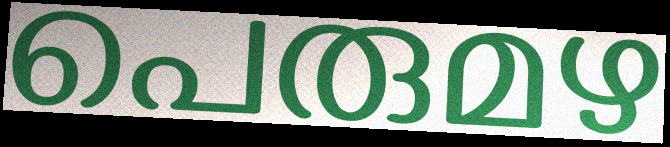
പെരുമഴ